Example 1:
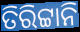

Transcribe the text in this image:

ତିରିଟ୍ଟାନି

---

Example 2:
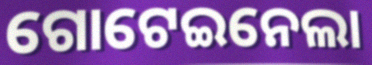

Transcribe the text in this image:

ଗୋଟେଇନେଲା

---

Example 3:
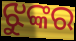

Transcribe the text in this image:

ଝୁଙ୍କର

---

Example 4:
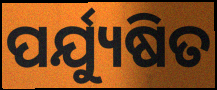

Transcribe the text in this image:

ପର୍ଯ୍ୟୁଷିତ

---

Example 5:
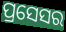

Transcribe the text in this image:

ପ୍ରସେସର